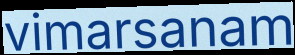
vimarsanam